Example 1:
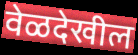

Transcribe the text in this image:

वेळदेखील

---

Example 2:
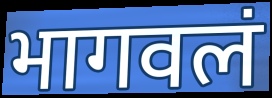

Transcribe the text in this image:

भागवलं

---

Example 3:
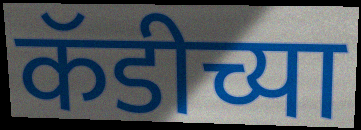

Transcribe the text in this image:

कॅडीच्या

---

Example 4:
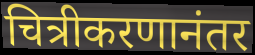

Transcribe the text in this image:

चित्रीकरणानंतर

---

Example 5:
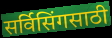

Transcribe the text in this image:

सर्विसिंगसाठी